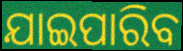
ଯାଇପାରିବ